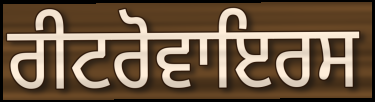
ਰੀਟਰੋਵਾਇਰਸ